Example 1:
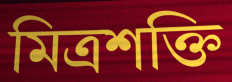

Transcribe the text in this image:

মিত্ৰশক্তি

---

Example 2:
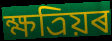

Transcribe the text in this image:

ক্ষত্ৰিয়ৰ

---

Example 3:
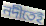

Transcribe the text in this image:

নদীতেই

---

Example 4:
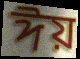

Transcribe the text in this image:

ঈয়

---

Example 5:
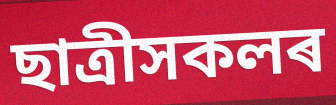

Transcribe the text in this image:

ছাত্ৰীসকলৰ